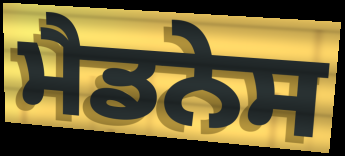
ਮੈਡਨੇਸ